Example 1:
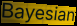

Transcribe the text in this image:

Bayesian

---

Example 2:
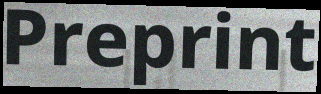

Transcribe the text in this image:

Preprint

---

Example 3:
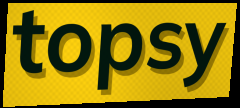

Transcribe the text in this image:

topsy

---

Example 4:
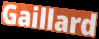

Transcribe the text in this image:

Gaillard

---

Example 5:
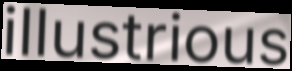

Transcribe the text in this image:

illustrious